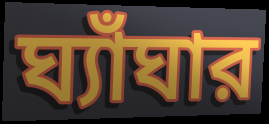
ঘ্যাঁঘার